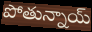
పోతున్నాయ్